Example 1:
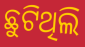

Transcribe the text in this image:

ଛୁଟିଥିଲି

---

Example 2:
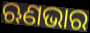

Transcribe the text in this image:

ଋଣଭାର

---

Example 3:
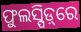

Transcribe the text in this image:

ଫୁଲସ୍ପିଡ଼୍‌ରେ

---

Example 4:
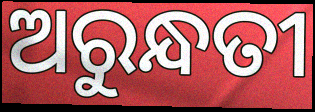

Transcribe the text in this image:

ଅରୁନ୍ଧତୀ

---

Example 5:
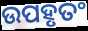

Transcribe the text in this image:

ଉପହୃତଂ